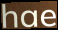
hae